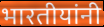
भारतीयांनी